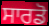
ਸਾਰਡੋ